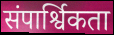
संपार्श्विकता